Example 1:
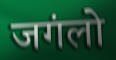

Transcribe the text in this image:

जगंलो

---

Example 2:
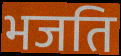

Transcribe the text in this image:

भजति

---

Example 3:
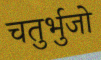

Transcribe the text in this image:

चतुर्भुजो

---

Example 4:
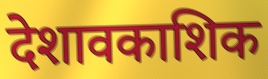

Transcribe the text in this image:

देशावकाशिक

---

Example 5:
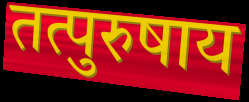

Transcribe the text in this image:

तत्पुरुषाय